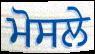
ਮੋਸਲੇ